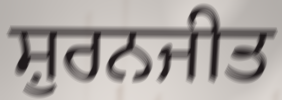
ਸ਼ੁਰਨਜੀਤ